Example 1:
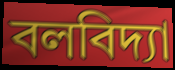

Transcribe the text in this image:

বলবিদ্যা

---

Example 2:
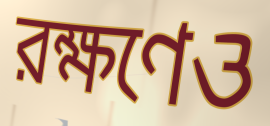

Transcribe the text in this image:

রক্ষণেও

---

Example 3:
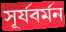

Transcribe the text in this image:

সূর্যবর্মন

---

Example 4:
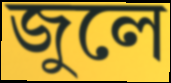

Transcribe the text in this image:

জুলে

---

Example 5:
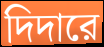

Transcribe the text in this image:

দিদারে